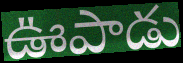
ఊపాడు